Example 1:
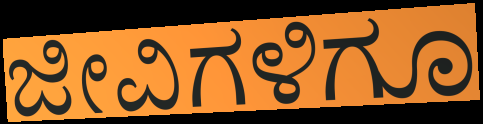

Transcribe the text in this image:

ಜೀವಿಗಳಿಗೂ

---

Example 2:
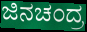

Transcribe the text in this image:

ಜಿನಚಂದ್ರ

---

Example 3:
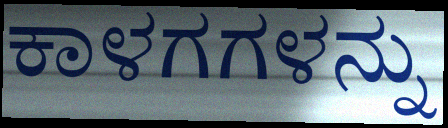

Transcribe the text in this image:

ಕಾಳಗಗಳನ್ನು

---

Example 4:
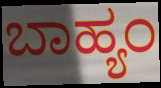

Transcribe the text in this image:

ಬಾಹ್ಯಂ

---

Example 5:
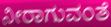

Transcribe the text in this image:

ನೀರಾಗುವಂತೆ